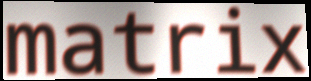
matrix